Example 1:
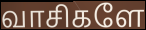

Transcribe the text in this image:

வாசிகளே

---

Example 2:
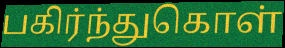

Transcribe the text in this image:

பகிர்ந்துகொள்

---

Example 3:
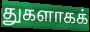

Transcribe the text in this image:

துகளாகக்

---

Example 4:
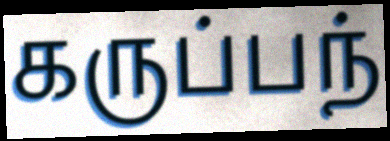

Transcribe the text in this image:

கருப்பந்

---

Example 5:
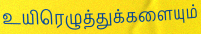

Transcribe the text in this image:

உயிரெழுத்துக்களையும்